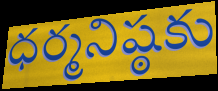
ధర్మనిష్ఠకు